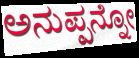
ಅನುಪ್ಪನ್ನೋ